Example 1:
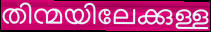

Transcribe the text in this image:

തിന്മയിലേക്കുള്ള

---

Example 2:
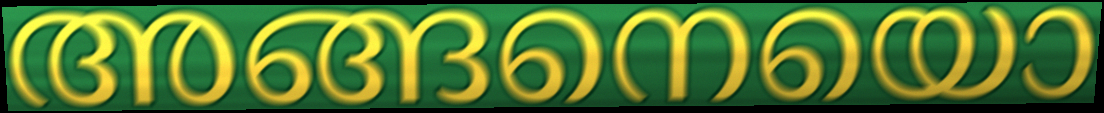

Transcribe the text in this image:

അങ്ങനെയൊ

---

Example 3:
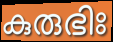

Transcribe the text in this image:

കുരുഭിഃ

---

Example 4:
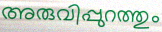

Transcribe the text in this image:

അരുവിപ്പുറത്തും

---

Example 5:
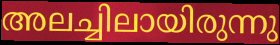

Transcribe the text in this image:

അലച്ചിലായിരുന്നു